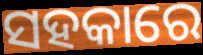
ସହକାରେ